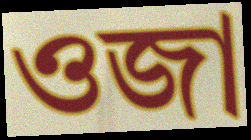
ওজা